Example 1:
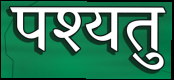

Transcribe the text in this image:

पश्यतु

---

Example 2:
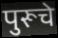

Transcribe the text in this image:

पुरूचे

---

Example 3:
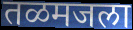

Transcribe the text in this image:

तळमजला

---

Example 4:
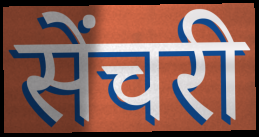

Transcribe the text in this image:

सेंचरी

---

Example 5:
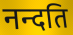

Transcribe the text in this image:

नन्दति